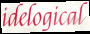
idelogical